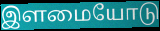
இளமையோடு